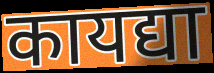
कायद्या